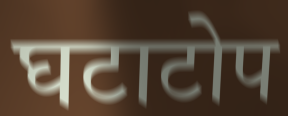
घटाटोप